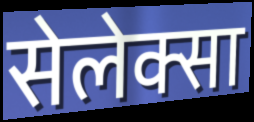
सेलेक्सा